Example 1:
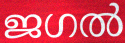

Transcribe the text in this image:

ജഗൽ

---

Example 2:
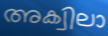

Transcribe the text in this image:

അക്വിലാ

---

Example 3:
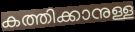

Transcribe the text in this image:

കത്തിക്കാനുള്ള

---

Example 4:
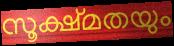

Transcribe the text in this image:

സൂക്ഷ്മതയും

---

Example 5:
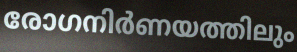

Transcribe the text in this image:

രോഗനിർണയത്തിലും